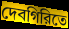
দেবগিরিতে